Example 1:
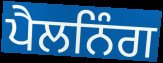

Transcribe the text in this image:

ਪੈਲਨਿੰਗ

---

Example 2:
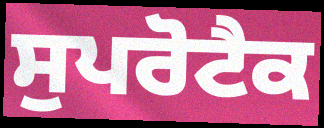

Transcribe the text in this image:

ਸੁਪਰੋਟੈਕ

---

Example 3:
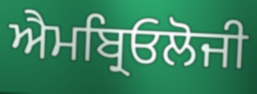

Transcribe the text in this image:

ਐਮਬ੍ਰਿਓਲੋਜੀ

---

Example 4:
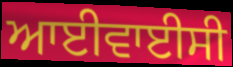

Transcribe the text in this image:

ਆਈਵਾਈਸੀ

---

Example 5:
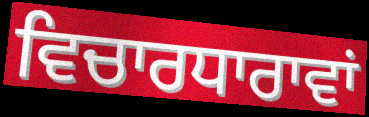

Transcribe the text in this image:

ਵਿਚਾਰਧਾਰਾਵਾਂ